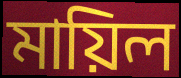
মায়িল